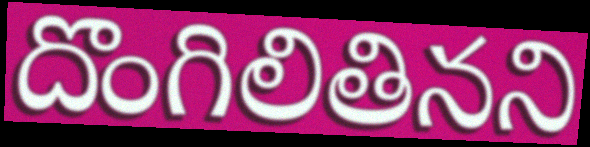
దొంగిలితినని